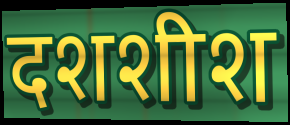
दशशीश